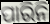
ପାରିନି